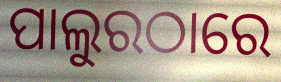
ପାଲୁରଠାରେ